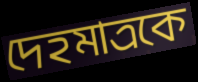
দেহমাত্রকে